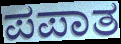
ಪಪಾತ